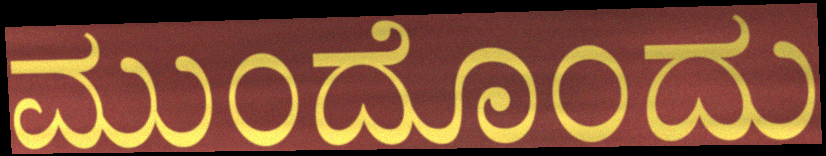
ಮುಂದೊಂದು